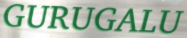
GURUGALU